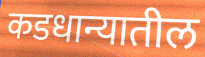
कडधान्यातील